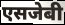
एसजेबी